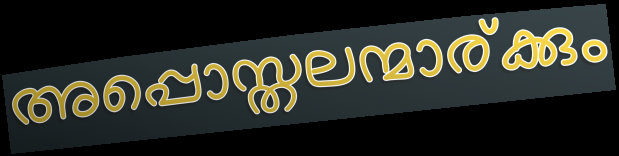
അപ്പൊസ്തലന്മാര്ക്കും